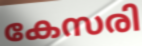
കേസരി